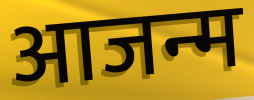
आजन्म